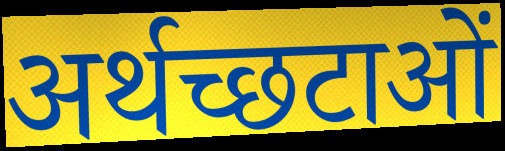
अर्थच्छटाओं